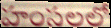
హంసలలో